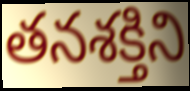
తనశక్తిని